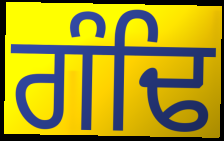
ਗੰਢਿ